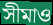
সীমাও